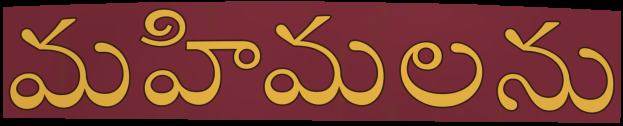
మహిమలను